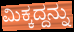
ಮಿಕ್ಕದ್ದನ್ನು